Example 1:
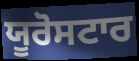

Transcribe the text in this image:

ਯੂਰੋਸਟਾਰ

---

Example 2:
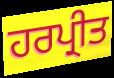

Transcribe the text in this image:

ਹਰਪ੍ਰੀਤ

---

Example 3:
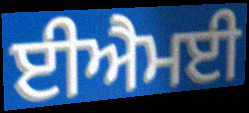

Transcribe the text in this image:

ਈਐਮਈ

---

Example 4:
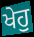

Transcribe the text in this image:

ਖੇਹੁ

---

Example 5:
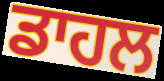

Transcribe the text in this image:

ਡਾਹਲ